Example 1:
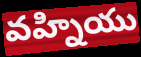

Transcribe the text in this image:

వహ్నియు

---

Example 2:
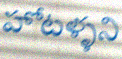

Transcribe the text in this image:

హోటళ్ళని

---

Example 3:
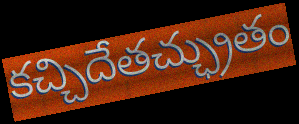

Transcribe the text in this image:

కచ్చిదేతచ్ఛ్రుతం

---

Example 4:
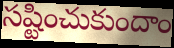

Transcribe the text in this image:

సష్టించుకుందాం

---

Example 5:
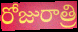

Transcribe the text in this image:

రోజురాత్రి